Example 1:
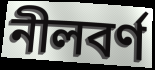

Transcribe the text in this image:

নীলবর্ণ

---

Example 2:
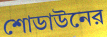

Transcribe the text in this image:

শোডাউনের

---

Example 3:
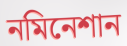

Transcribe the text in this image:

নমিনেশান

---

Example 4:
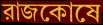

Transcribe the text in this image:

রাজকোষে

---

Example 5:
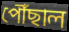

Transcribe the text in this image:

পৌঁছাল